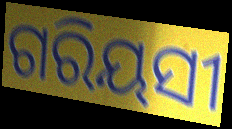
ଗରିୟସୀ